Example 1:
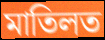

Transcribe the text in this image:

মাতিলত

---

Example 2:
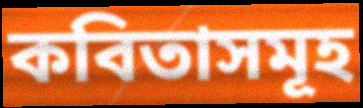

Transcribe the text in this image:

কবিতাসমূহ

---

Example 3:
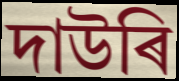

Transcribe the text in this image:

দাউৰি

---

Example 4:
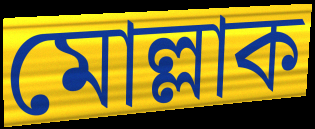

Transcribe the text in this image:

মোল্লাক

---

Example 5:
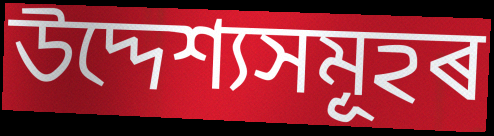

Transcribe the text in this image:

উদ্দেশ্যসমূহৰ